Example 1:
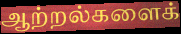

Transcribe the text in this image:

ஆற்றல்களைக்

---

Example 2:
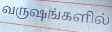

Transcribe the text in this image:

வருஷங்களில்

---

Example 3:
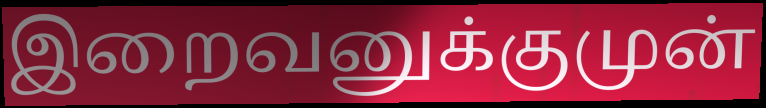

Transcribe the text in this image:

இறைவனுக்குமுன்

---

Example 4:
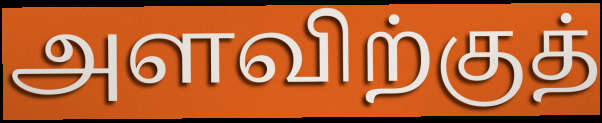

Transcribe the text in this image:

அளவிற்குத்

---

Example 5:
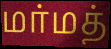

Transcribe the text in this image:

மர்மத்